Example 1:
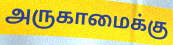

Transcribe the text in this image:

அருகாமைக்கு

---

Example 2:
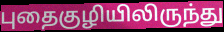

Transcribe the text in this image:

புதைகுழியிலிருந்து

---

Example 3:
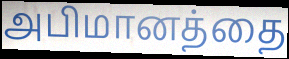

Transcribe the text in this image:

அபிமானத்தை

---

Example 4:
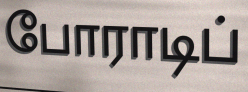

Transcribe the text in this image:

போராடிப்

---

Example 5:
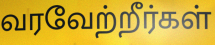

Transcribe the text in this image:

வரவேற்றீர்கள்